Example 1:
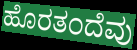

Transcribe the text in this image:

ಹೊರತಂದೆವು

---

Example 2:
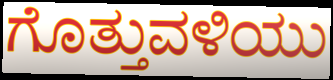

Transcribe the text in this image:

ಗೊತ್ತುವಳಿಯು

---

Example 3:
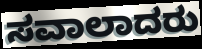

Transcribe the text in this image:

ಸವಾಲಾದರು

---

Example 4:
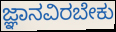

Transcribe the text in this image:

ಜ್ಞಾನವಿರಬೇಕು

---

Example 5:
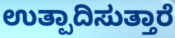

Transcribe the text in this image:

ಉತ್ಪಾದಿಸುತ್ತಾರೆ